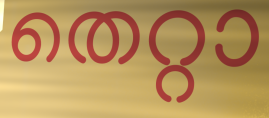
തെറ്റാ